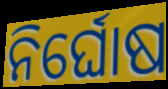
ନିର୍ଘୋଷ